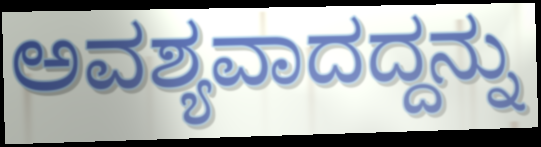
ಅವಶ್ಯವಾದದ್ದನ್ನು